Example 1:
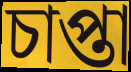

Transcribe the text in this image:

চাপ্তা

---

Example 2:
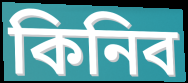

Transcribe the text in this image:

কিনিব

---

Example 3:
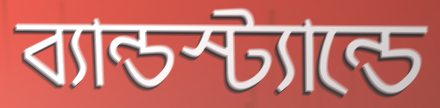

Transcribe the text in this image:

ব্যান্ডস্ট্যান্ডে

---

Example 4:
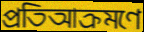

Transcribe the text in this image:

প্রতিআক্রমণে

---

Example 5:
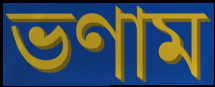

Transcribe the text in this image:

ভণাম